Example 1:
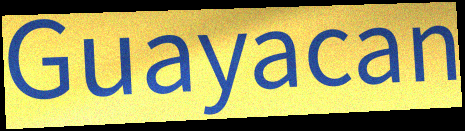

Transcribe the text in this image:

Guayacan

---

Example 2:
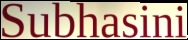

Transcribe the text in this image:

Subhasini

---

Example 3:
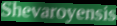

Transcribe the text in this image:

Shevaroyensis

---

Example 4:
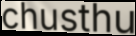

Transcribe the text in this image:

chusthu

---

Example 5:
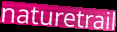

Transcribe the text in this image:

naturetrail